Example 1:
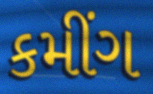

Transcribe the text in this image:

કમીંગ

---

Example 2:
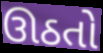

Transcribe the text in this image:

ઊઠતો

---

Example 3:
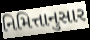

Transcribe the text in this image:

નિમિત્તાનુસાર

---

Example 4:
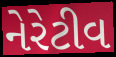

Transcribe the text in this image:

નેરેટીવ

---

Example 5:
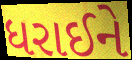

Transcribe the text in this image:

ધરાઈને